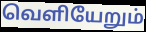
வெளியேறும்